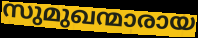
സുമുഖന്മാരായ